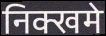
निक्खमे